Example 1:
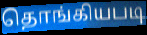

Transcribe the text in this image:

தொங்கியபடி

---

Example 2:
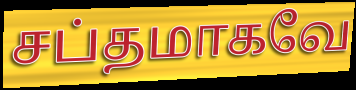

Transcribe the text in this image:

சப்தமாகவே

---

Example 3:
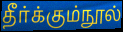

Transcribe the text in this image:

தீர்க்கும்நூல்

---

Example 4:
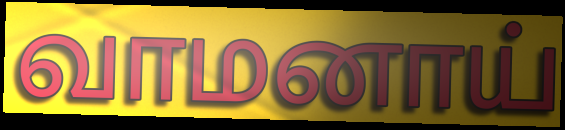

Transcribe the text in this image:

வாமனாய்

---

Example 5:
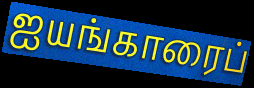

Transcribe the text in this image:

ஐயங்காரைப்